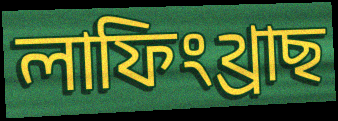
লাফিংথ্ৰাছ